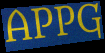
APPG